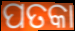
ପତକା